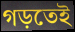
গড়তেই